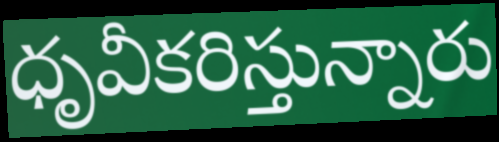
ధృవీకరిస్తున్నారు